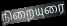
நிறையுரை